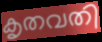
കൃതവതി